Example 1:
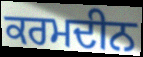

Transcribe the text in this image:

ਕਰਮਦੀਨ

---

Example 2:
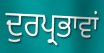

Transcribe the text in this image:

ਦੁਰਪ੍ਰਭਾਵਾਂ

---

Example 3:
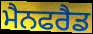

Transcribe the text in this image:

ਮੈਨਫਰੈਡ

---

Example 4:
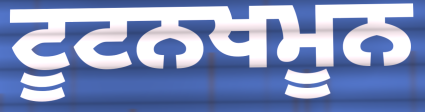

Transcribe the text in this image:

ਟੂਟਨਖਮੂਨ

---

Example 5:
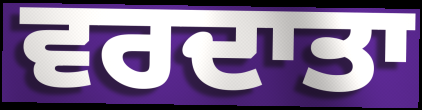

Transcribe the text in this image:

ਵਰਦਾਤਾ